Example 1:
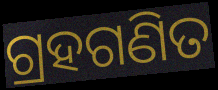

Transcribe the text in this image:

ଗ୍ରହଗଣିତ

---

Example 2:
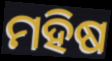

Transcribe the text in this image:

ମହିଷ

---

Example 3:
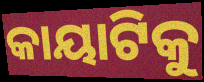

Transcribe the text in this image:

କାୟାଟିକୁ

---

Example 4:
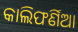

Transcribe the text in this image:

କାଲିଫର୍ଣିଆ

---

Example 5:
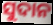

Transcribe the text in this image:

ସୁଦାନ